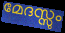
മേദസ്സും